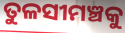
ତୁଳସୀମଞ୍ଚକୁ